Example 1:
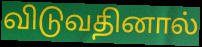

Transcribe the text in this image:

விடுவதினால்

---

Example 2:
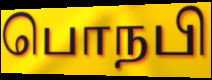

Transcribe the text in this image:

பொநபி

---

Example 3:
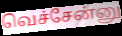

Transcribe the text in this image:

வெச்சேன்னு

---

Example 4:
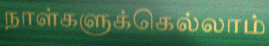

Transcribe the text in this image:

நாள்களுக்கெல்லாம்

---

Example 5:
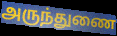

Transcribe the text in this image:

அருந்துணை